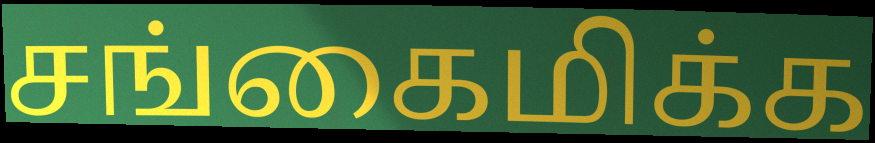
சங்கைமிக்க